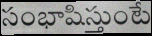
సంభాషిస్తుంటే